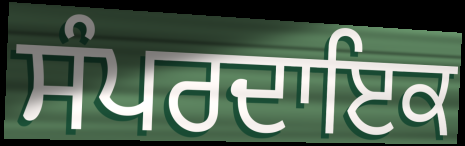
ਸੰਪਰਦਾਇਕ